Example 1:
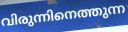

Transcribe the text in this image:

വിരുന്നിനെത്തുന്ന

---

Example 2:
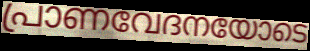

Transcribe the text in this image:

പ്രാണവേദനയോടെ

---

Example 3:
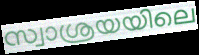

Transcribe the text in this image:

സ്വാശ്രയയിലെ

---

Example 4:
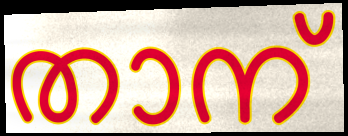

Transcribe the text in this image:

താന്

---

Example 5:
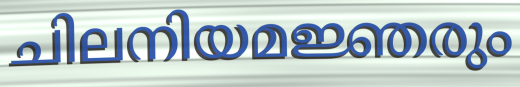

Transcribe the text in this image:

ചിലനിയമജ്ഞരും